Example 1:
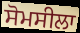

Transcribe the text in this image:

ਸੋਮਸੀਲਾ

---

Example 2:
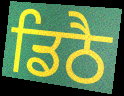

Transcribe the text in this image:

ਡਿਠੈ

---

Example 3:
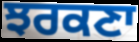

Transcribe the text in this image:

ਝਰਕਣਾ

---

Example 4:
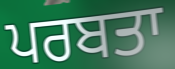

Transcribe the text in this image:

ਪਰਬਤਾ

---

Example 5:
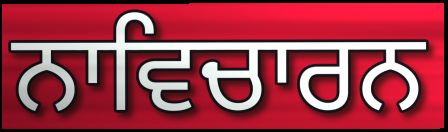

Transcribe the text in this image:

ਨਾਵਿਚਾਰਨ